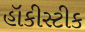
હૉકીસ્ટીક